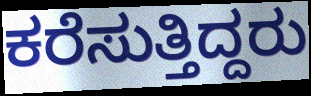
ಕರೆಸುತ್ತಿದ್ದರು